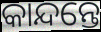
କାନ୍ଦନ୍ତେ